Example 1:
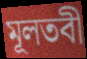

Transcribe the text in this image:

মূলতবী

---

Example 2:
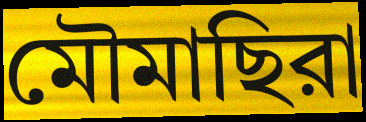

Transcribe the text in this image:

মৌমাছিরা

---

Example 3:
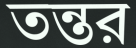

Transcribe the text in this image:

তন্তর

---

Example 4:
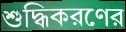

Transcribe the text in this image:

শুদ্ধিকরণের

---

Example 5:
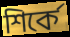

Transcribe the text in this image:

শির্কে